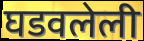
घडवलेली